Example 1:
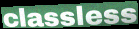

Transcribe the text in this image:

classless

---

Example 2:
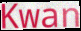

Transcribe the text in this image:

Kwan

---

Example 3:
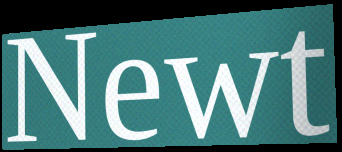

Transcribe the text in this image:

Newt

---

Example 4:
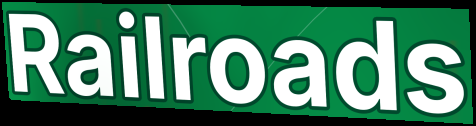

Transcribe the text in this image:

Railroads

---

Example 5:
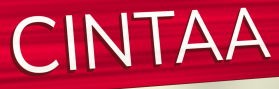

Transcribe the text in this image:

CINTAA